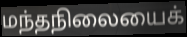
மந்தநிலையைக்